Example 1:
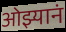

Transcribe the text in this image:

ओझ्यानं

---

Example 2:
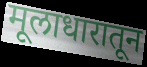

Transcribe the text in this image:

मूलाधारातून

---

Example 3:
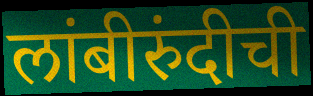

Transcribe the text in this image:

लांबीरुंदीची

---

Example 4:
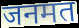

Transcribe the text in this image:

जनमत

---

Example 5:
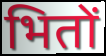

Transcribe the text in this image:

भितों